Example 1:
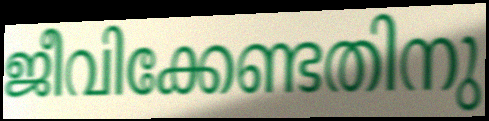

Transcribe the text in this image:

ജീവിക്കേണ്ടതിനു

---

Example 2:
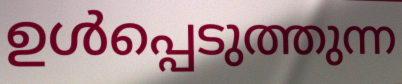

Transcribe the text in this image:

ഉൾപ്പെടുത്തുന്ന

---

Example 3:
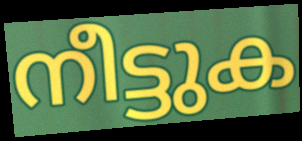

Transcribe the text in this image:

നീട്ടുക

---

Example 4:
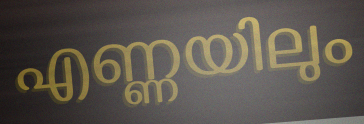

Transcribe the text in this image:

എണ്ണയിലും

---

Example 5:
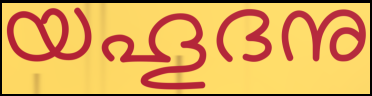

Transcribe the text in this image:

യഹൂദനു